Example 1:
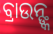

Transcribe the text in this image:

ବ୍ରାଉନ୍ଙ୍କ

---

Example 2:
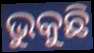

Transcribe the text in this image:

ଭୁକୁଛି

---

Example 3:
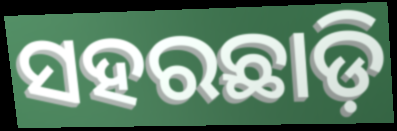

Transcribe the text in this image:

ସହରଛାଡ଼ି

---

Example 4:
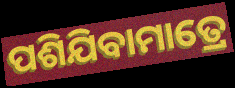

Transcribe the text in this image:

ପଶିଯିବାମାତ୍ରେ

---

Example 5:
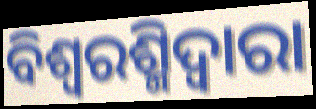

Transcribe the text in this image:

ବିଶ୍ୱରଶ୍ମିଦ୍ୱାରା